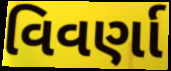
વિવર્ણા